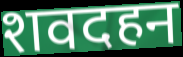
शवदहन